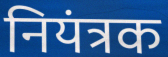
नियंत्रक